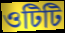
ওটিটি